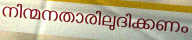
നിന്മനതാരിലുദിക്കണം